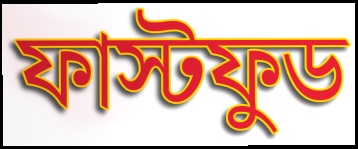
ফাস্টফুড